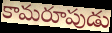
కామరూపుడు